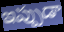
ఇప్పుడా